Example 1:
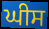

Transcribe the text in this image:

ਘੀਸ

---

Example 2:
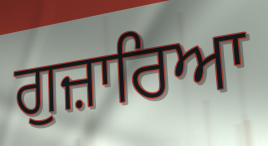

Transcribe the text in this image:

ਗੁਜ਼ਾਰਿਆ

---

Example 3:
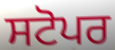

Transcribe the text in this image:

ਸਟੋਪਰ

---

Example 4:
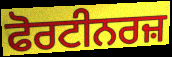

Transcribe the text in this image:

ਫੋਰਟੀਨਰਜ਼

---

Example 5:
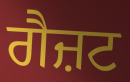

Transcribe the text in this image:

ਗੈਜ਼ਟ